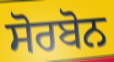
ਸੋਰਬੋਨ